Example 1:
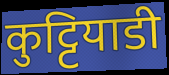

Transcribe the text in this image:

कुट्टियाडी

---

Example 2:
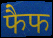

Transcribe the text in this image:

फैफ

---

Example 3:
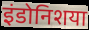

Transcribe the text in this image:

इंडोनिशया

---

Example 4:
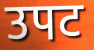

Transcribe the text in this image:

उपट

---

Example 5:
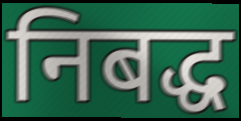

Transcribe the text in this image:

निबद्ध